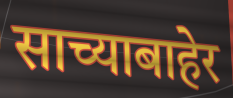
साच्याबाहेर